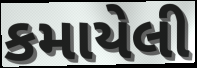
કમાયેલી